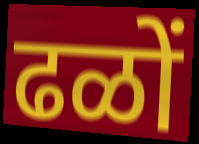
ढळों